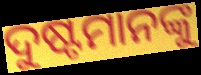
ଦୁଷ୍ଟମାନଙ୍କୁ